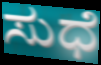
ಸುಧೆ